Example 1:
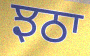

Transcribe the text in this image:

ਝਠਾ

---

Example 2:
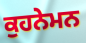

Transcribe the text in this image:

ਕੁਹਨੇਮਨ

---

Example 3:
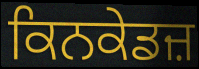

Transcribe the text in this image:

ਕਿਨਕੇਡਜ਼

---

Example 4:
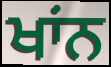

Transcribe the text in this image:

ਖਾਂਨ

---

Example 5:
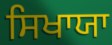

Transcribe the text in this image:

ਸਿਖਾਯਾ